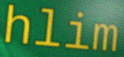
hlim